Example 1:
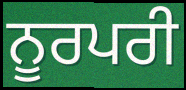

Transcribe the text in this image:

ਨੂਰਪਰੀ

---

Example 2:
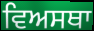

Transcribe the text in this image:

ਵਿਅਸਥਾ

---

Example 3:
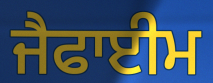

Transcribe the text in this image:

ਜੈਫਾਈਮ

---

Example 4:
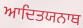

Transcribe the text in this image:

ਆਦਿਤਯਨਾਥ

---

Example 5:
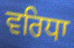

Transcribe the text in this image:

ਵਰਿਧਾ